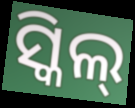
ସ୍କିଲ୍